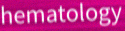
hematology